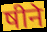
षीने